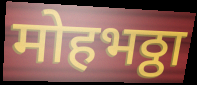
मोहभठ्ठा